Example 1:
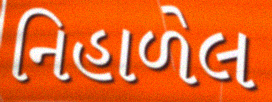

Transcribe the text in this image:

નિહાળેલ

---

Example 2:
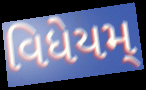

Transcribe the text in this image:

વિધેયમ્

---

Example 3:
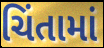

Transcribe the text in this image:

ચિંતામાં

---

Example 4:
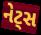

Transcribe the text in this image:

નેટ્સ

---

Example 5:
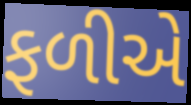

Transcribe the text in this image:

ફળીએ